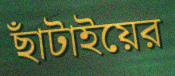
ছাঁটাইয়ের